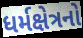
ધર્મક્ષેત્રનો